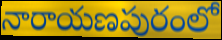
నారాయణపురంలో